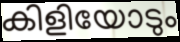
കിളിയോടും